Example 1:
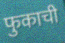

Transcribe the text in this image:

फुकाची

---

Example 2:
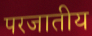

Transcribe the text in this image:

परजातीय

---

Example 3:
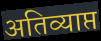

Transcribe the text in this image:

अतिव्याप्त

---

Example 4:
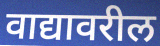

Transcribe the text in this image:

वाद्यावरील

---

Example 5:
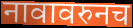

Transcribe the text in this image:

नावावरुनच